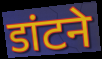
डांटने